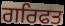
ਗਰਿਫਤ